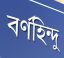
বৰ্ণহিন্দু